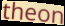
theon